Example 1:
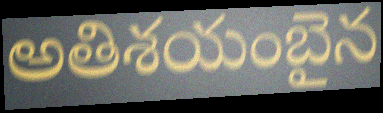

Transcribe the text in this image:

అతిశయంబైన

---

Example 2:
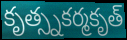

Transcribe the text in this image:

కృత్స్నకర్మకృత్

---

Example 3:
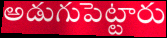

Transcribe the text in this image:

అడుగుపెట్టారు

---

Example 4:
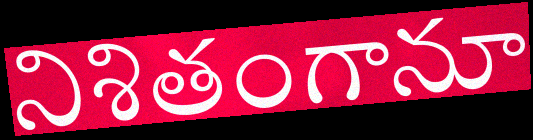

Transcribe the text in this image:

నిశితంగానూ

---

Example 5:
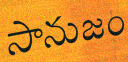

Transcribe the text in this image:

సానుజం